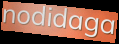
nodidaga